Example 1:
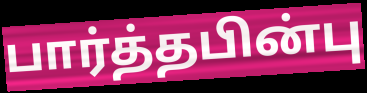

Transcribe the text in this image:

பார்த்தபின்பு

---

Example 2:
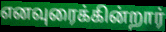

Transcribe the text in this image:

எனவுரைக்கின்றார்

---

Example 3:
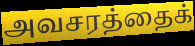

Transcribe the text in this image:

அவசரத்தைக்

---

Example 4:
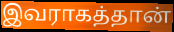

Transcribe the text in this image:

இவராகத்தான்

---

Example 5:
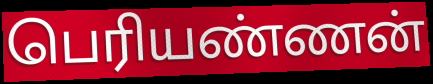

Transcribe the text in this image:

பெரியண்ணன்